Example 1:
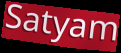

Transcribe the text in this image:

Satyam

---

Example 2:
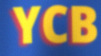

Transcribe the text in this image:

YCB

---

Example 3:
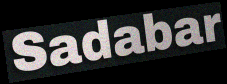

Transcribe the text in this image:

Sadabar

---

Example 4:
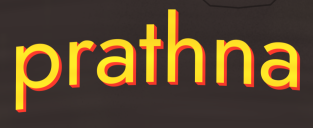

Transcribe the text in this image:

prathna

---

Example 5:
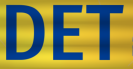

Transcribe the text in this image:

DET